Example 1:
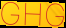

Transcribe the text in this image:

GHG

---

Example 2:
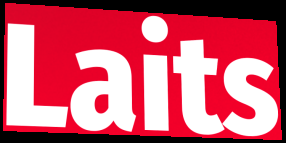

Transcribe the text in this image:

Laits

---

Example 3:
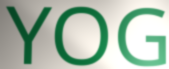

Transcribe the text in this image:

YOG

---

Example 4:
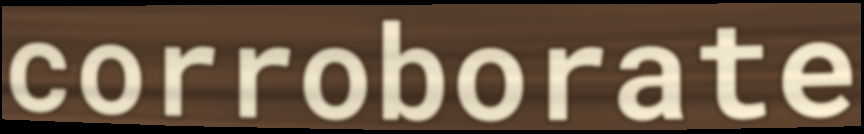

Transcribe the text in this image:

corroborate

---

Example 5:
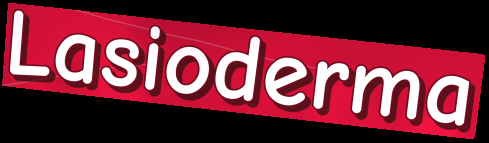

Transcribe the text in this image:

Lasioderma